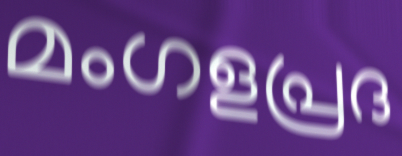
മംഗളപ്രദ